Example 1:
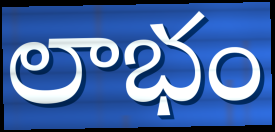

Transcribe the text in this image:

లాభం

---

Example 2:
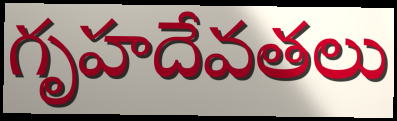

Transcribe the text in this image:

గృహదేవతలు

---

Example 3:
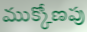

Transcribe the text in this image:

ముక్కోణపు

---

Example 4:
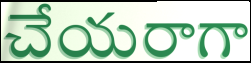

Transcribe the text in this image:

చేయరాగా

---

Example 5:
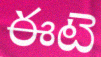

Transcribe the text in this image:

ఈటె